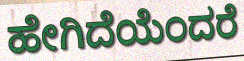
ಹೇಗಿದೆಯೆಂದರೆ